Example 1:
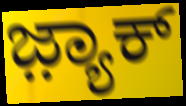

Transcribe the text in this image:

ಜ಼್ಯಾಕ್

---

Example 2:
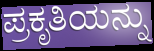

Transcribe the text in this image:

ಪ್ರಕೃತಿಯನ್ನು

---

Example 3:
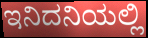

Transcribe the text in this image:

ಇನಿದನಿಯಲ್ಲಿ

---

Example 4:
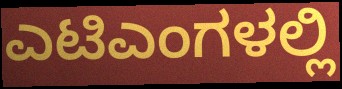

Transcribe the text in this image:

ಎಟಿಎಂಗಳಲ್ಲಿ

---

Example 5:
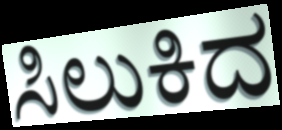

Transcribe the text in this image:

ಸಿಲುಕಿದ